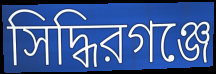
সিদ্ধিরগঞ্জে